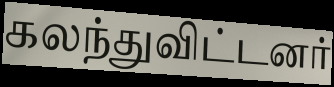
கலந்துவிட்டனர்